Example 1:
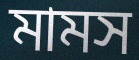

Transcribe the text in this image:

মামস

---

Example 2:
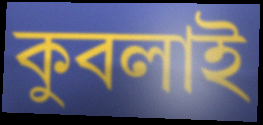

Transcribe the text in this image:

কুবলাই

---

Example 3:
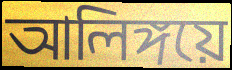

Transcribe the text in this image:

আলিঙ্গয়ে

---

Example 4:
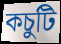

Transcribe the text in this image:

কচুটি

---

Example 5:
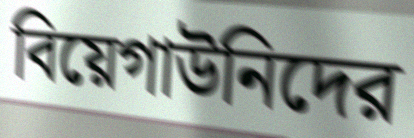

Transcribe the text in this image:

বিয়েগাউনিদের